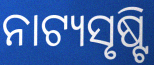
ନାଟ୍ୟସୃଷ୍ଟି